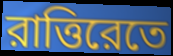
রাত্তিরেতে